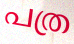
പത്ര